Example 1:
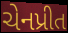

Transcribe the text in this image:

ચેનપ્રીત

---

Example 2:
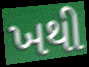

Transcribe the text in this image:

ખથી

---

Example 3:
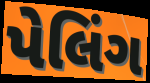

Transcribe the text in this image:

પેલિંગ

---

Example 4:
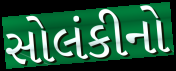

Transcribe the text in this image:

સોલંકીનો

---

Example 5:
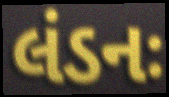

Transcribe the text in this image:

લંડનઃ